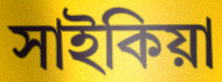
সাইকিয়া